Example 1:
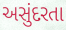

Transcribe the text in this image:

અસુંદરતા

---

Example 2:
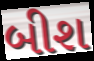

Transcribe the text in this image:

બીશ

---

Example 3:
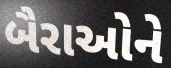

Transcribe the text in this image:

બૈરાઓને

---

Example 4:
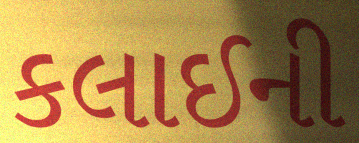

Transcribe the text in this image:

કલાઈની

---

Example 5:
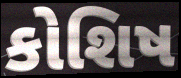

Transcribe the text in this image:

કોશિષ